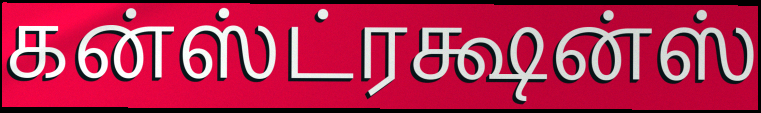
கன்ஸ்ட்ரக்ஷன்ஸ்